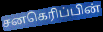
சனகெரிப்பின்